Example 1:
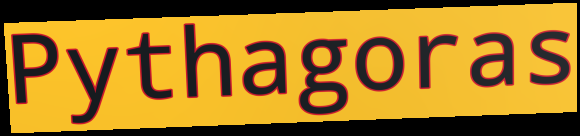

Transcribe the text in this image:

Pythagoras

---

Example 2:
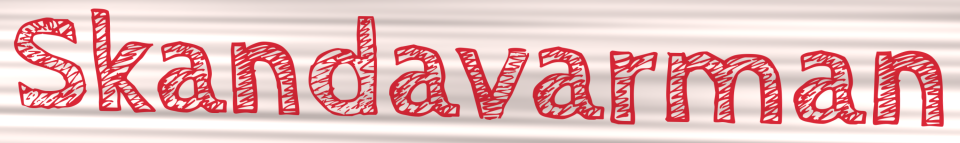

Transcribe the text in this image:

Skandavarman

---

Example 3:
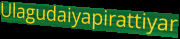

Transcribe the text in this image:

Ulagudaiyapirattiyar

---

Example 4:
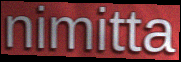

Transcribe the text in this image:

nimitta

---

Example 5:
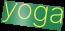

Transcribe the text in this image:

yoga